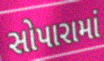
સોપારામાં